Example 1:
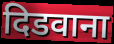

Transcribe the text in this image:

दिडवाना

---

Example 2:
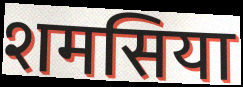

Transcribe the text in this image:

शमसिया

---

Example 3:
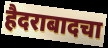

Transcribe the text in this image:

हैदराबादचा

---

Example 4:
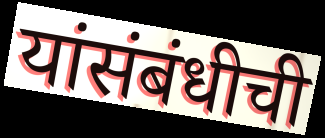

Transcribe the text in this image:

यांसंबंधीची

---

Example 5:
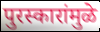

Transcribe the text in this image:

पुरस्कारांमुळे